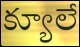
క్యూలే